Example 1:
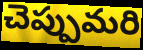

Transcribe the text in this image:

చెప్పుమరి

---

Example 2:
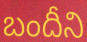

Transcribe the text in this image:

బందీని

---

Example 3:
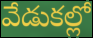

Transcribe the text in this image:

వేడుకల్లో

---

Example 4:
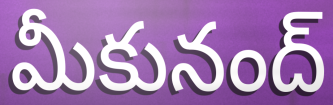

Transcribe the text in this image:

మీకునంద్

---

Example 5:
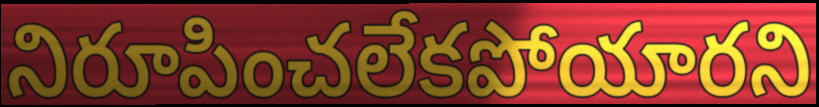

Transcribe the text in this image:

నిరూపించలేకపోయారని